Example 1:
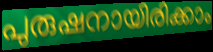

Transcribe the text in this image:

പുരുഷനായിരിക്കാം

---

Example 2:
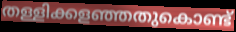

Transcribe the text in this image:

തള്ളിക്കളഞ്ഞതുകൊണ്ട്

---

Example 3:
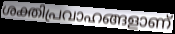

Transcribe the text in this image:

ശക്തിപ്രവാഹങ്ങളാണ്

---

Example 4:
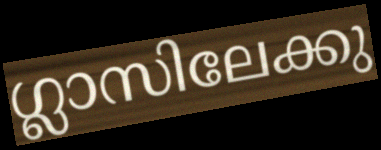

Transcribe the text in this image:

ഗ്ലാസിലേക്കു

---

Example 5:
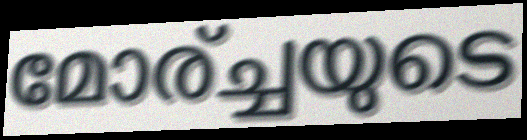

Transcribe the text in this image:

മോര്ച്ചയുടെ